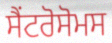
ਸੈਂਟਰੋਸੋਮਸ